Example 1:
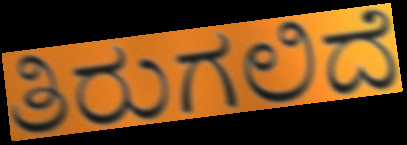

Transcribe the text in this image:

ತಿರುಗಲಿದೆ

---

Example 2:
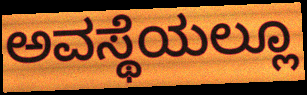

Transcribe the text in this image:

ಅವಸ್ಥೆಯಲ್ಲೂ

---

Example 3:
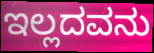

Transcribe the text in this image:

ಇಲ್ಲದವನು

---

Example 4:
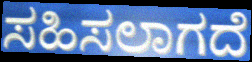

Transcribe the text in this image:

ಸಹಿಸಲಾಗದೆ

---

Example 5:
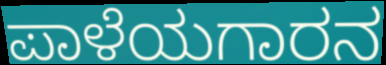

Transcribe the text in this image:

ಪಾಳೆಯಗಾರನ